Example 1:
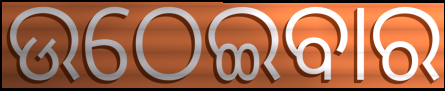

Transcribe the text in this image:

ଉଠେଇବାର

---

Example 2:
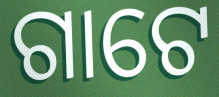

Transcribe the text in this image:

ଗାଟେ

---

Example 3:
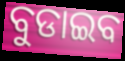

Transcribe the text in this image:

ବୁଡାଇବ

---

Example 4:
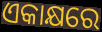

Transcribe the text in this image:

ଏକାକ୍ଷରେ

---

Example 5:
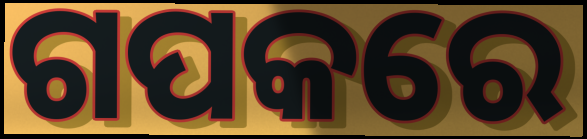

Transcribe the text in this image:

ଗପକରେ